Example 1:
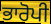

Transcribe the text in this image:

ਭਾਰੋਪੀ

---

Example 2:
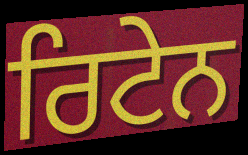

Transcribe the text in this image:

ਰਿਟੇਨ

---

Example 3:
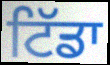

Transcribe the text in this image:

ਟਿੱਡਾ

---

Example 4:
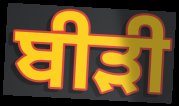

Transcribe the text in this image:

ਬੀਡ਼ੀ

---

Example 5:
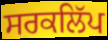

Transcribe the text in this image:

ਸਰਕਲਿੱਪ